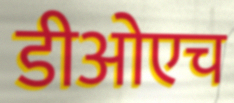
डीओएच